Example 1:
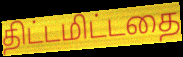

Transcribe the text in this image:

திட்டமிட்டதை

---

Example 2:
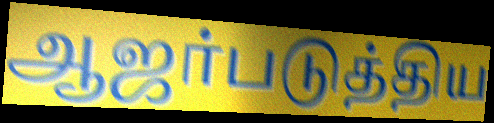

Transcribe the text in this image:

ஆஜர்படுத்திய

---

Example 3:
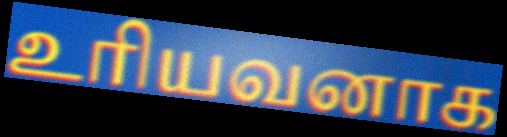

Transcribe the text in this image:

உரியவனாக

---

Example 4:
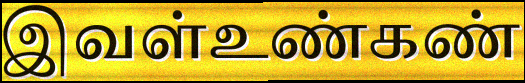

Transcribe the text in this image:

இவள்உண்கண்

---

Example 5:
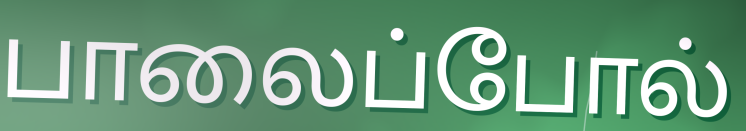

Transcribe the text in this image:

பாலைப்போல்